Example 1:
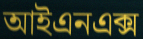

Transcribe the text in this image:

আইএনএক্স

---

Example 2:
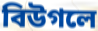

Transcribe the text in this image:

বিউগলে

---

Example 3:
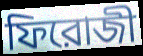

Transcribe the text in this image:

ফিরোজী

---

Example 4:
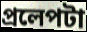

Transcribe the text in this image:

প্রলেপটা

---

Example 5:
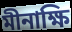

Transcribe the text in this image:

মীনাক্ষি